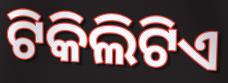
ଟିକିଲିଟିଏ